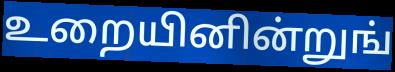
உறையினின்றுங்